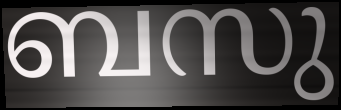
ബസു